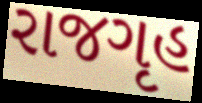
રાજગૃહ